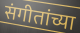
संगीतांच्या